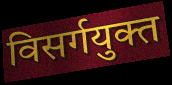
विसर्गयुक्त